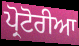
ਪ੍ਰੋਟੋਰੀਆ